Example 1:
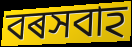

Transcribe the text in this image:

বৰসবাহ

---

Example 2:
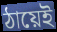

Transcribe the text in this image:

ঠায়েই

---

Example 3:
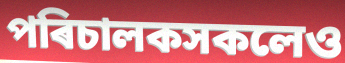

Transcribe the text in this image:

পৰিচালকসকলেও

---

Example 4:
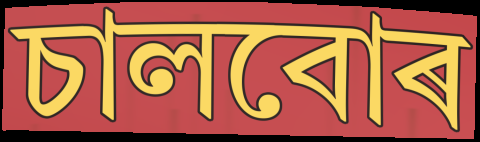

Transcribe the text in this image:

চালবোৰ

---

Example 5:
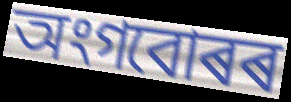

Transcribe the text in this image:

অংগবোৰৰ